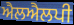
ਐਲਐਲਪੀ